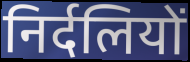
निर्दलियों